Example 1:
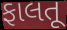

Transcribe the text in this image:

ફાલતૂ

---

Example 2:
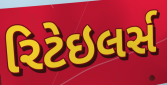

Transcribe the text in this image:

રિટેઇલર્સ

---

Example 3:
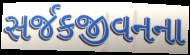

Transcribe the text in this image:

સર્જકજીવનના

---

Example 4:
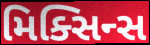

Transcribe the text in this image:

મિક્સિન્સ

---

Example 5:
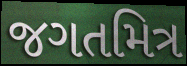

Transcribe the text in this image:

જગતમિત્ર